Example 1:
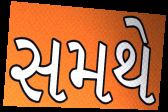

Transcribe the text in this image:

સમથે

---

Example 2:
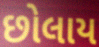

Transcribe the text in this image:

છોલાય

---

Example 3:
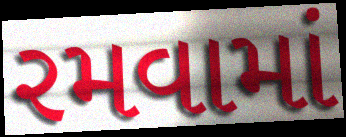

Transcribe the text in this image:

રમવામાં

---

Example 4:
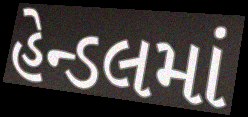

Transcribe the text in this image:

હેન્ડલમાં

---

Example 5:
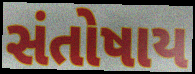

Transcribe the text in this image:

સંતોષાય